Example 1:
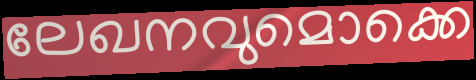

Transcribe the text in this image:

ലേഖനവുമൊക്കെ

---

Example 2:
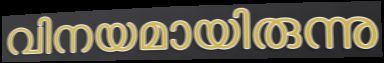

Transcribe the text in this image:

വിനയമായിരുന്നു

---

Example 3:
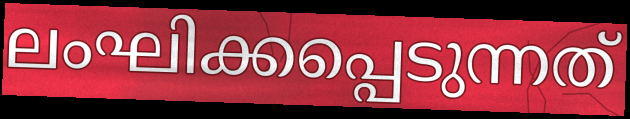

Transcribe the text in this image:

ലംഘിക്കപ്പെടുന്നത്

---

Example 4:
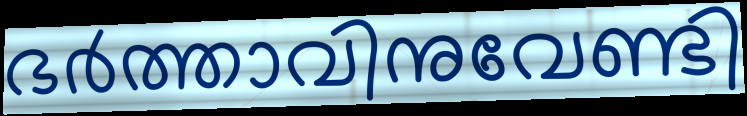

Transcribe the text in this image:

ഭർത്താവിനുവേണ്ടി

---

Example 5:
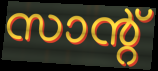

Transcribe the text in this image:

സാന്റ്